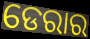
ଡେରାର